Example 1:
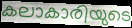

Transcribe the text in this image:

കലാകാരിയുടെ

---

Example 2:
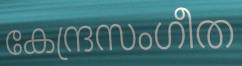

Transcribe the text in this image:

കേന്ദ്രസംഗീത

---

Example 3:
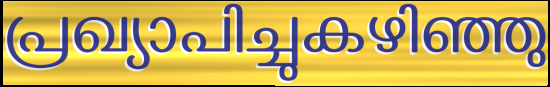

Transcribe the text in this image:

പ്രഖ്യാപിച്ചുകഴിഞ്ഞു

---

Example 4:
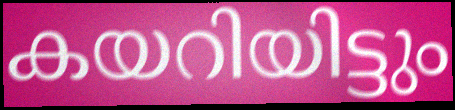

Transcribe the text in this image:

കയറിയിട്ടും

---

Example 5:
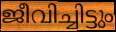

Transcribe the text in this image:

ജീവിച്ചിട്ടും